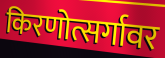
किरणोत्सर्गावर